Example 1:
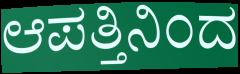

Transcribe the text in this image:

ಆಪತ್ತಿನಿಂದ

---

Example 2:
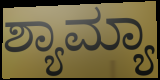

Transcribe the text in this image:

ಶ್ಯಾಮ್ಯಾ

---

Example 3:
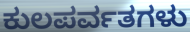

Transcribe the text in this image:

ಕುಲಪರ್ವತಗಳು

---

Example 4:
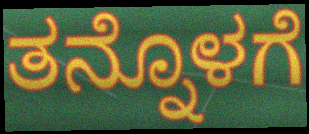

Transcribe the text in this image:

ತನ್ನೊಳಗೆ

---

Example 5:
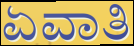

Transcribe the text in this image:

ಏವಾತಿ